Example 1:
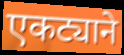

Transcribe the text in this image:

एकट्याने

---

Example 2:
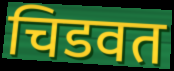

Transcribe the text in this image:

चिडवत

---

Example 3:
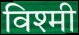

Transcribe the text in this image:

विश्मी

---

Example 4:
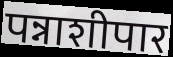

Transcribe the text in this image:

पन्नाशीपार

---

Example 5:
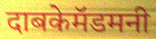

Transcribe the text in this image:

दाबकेमॅडमनी